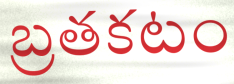
బ్రతకటం